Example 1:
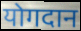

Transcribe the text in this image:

योगदान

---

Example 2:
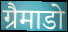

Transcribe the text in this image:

ग्रैमाडो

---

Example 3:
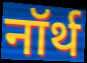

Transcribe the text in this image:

नॉर्थ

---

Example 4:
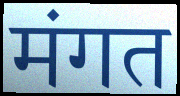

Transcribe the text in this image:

मंगत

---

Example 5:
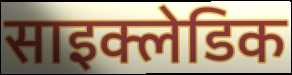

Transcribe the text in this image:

साइक्लेडिक